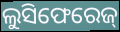
ଲୁସିଫେରେଜ୍